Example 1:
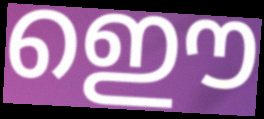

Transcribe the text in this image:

ഇൌ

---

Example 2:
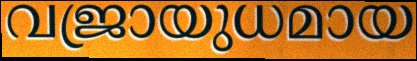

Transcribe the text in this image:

വജ്രായുധമായ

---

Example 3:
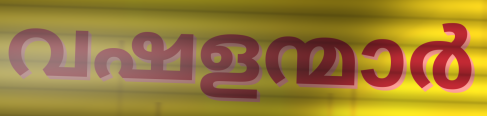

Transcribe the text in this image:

വഷളന്മാർ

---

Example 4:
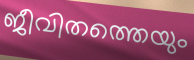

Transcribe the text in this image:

ജീവിതത്തെയും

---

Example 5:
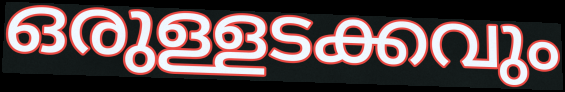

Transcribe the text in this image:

ഒരുള്ളടക്കവും